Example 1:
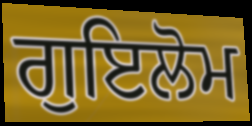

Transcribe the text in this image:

ਗੁਇਲੋਮ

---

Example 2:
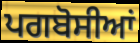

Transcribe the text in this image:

ਪਗਬੋਸੀਆਂ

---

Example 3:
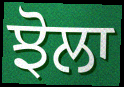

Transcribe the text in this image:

ਝੋਲਾ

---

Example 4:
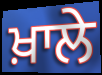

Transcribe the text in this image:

ਖ਼ਾਲੇ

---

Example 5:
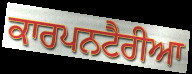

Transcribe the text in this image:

ਕਾਰਪਨਟੈਰੀਆ